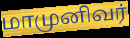
மாமுனிவர்